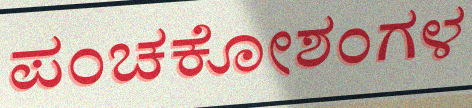
ಪಂಚಕೋಶಂಗಳ